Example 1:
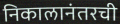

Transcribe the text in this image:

निकालानंतरची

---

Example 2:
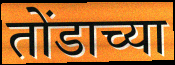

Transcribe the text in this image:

तोंडाच्या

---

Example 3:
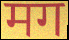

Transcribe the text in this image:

मग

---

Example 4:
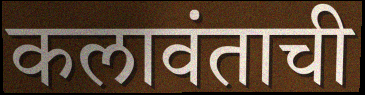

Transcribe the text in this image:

कलावंताची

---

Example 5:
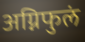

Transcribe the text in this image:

अग्निफुलं